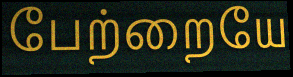
பேற்றையே